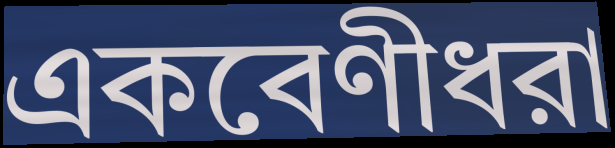
একবেণীধরা